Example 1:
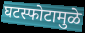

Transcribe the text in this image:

घटस्फोटामुळे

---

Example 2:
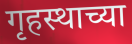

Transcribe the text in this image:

गृहस्थाच्या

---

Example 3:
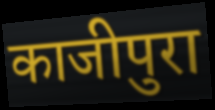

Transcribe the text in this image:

काजीपुरा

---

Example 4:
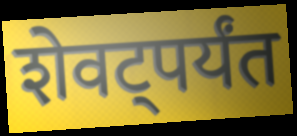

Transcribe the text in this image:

शेवट्पर्यंत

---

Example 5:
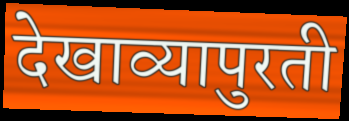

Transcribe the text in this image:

देखाव्यापुरती